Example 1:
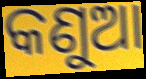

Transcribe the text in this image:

କଣୁଆ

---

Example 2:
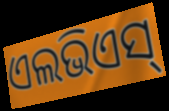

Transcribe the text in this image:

ଏଲଭିଏସ୍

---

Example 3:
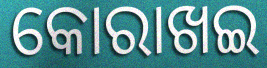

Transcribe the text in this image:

କୋରାଖଇ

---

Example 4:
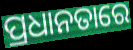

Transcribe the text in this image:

ପ୍ରଧାନତାରେ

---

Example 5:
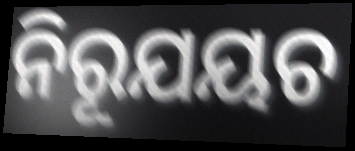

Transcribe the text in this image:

ନିରୂଯୟଚ